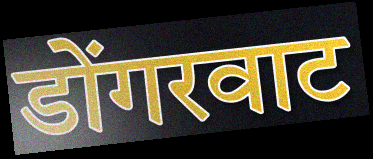
डोंगरवाट